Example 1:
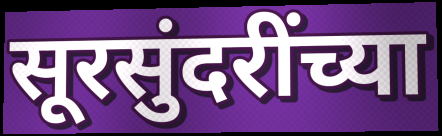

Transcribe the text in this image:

सूरसुंदरींच्या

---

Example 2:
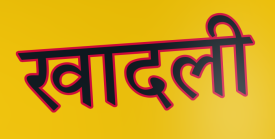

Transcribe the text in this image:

खादली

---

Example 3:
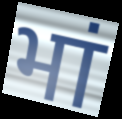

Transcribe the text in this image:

भां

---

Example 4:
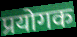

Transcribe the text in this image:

प्रयोगक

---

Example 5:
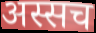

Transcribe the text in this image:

अस्सच